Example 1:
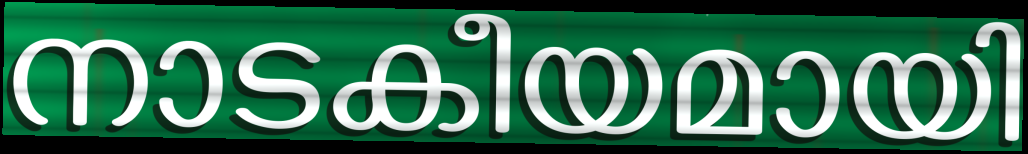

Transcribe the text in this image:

നാടകീയമായി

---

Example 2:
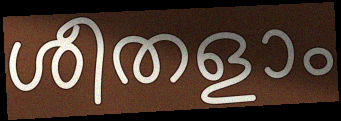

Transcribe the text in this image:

ശീതളാം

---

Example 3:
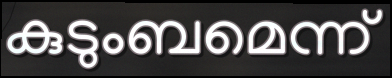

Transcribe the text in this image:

കുടുംബമെന്ന്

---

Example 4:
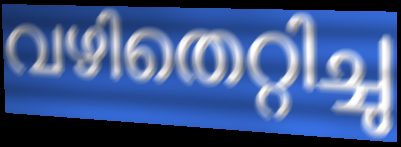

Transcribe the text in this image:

വഴിതെറ്റിച്ചു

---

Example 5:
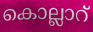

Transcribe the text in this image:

കൊല്ലാറ്